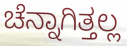
ಚೆನ್ನಾಗಿತ್ತಲ್ಲ